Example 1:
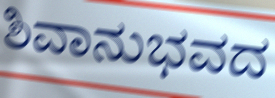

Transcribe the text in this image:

ಶಿವಾನುಭವದ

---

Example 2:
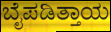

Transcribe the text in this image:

ಬೈಪಡಿತ್ತಾಯ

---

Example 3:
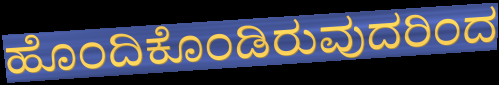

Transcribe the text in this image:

ಹೊಂದಿಕೊಂಡಿರುವುದರಿಂದ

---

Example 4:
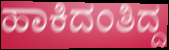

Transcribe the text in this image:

ಹಾಕಿದಂತಿದ್ದ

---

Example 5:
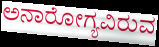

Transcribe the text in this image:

ಅನಾರೋಗ್ಯವಿರುವ